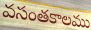
వసంతకాలము